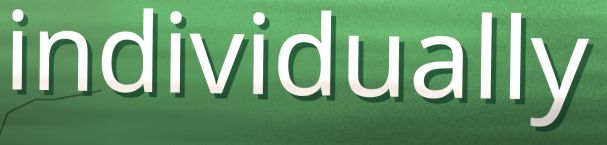
individually